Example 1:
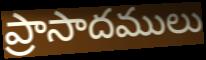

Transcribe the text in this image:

ప్రాసాదములు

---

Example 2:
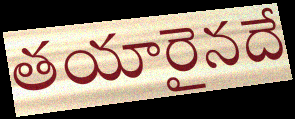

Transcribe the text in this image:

తయారైనదే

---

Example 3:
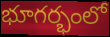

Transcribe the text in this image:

భూగర్భంలో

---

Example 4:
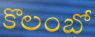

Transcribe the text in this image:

కొలంబో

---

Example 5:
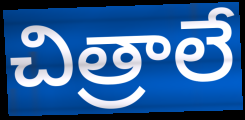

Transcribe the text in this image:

చిత్రాలే